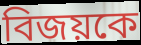
বিজয়কে